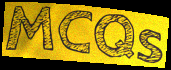
MCQs